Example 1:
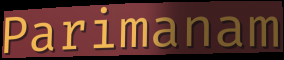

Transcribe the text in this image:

Parimanam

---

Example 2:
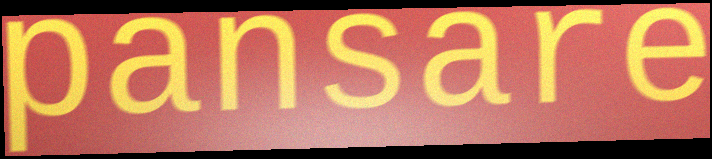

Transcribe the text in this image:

pansare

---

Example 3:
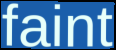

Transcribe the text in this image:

faint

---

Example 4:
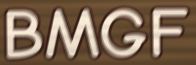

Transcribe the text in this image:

BMGF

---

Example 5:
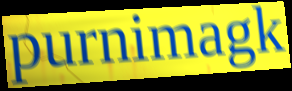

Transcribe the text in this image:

purnimagk